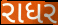
રાધર